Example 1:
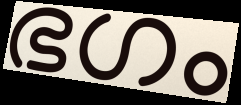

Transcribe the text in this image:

ഭഗം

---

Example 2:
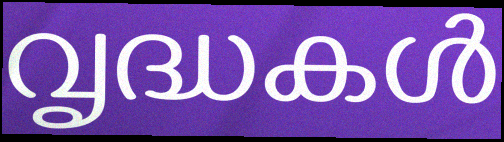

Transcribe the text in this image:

വൃദ്ധകൾ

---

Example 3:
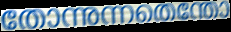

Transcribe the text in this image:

തോന്നുന്നതെന്തോ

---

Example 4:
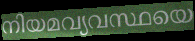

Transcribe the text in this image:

നിയമവ്യവസ്ഥയെ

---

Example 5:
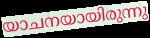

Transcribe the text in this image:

യാചനയായിരുന്നു